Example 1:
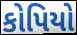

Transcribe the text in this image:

કોપિયો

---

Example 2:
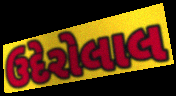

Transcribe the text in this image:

ઉદેરોલાલ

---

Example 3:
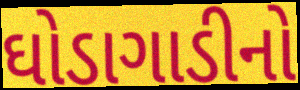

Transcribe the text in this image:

ઘોડાગાડીનો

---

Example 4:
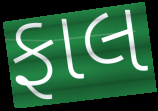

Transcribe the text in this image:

ફાલ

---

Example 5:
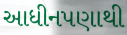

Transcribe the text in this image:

આધીનપણાથી